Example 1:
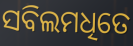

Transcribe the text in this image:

ସବିଲମଧିତେ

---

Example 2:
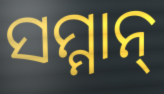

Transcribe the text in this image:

ସମ୍ମାନ୍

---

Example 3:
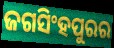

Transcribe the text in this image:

ଜଗସିଂହପୁରର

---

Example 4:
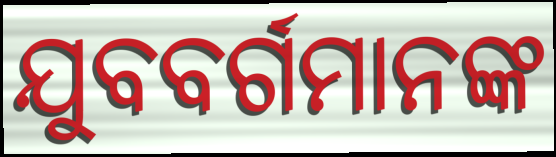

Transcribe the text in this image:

ଯୁବବର୍ଗମାନଙ୍କ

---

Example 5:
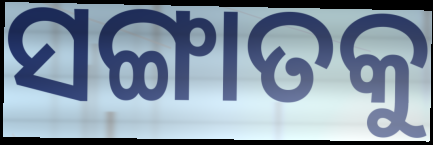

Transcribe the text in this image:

ସଙ୍ଗାତକୁ